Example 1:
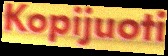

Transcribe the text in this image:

Kopijuoti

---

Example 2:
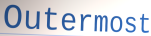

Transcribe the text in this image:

Outermost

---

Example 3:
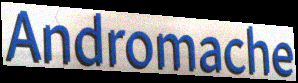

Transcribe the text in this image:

Andromache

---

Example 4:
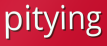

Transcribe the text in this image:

pitying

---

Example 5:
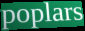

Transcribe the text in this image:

poplars